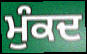
ਮੁੰਕਦ